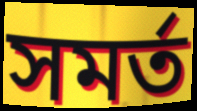
সমর্ত